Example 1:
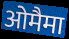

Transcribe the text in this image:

ओमैमा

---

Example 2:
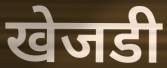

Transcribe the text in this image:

खेजडी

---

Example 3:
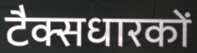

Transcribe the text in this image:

टैक्सधारकों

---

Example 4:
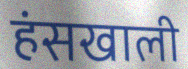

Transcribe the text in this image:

हंसखाली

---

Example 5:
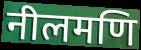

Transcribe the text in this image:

नीलमणि